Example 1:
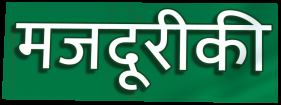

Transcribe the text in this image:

मजदूरीकी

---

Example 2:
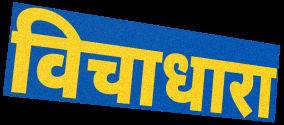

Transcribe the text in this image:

विचाधारा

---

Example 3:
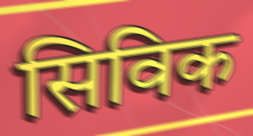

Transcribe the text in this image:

सिविक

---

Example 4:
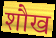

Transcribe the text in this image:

शौख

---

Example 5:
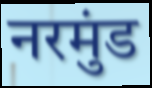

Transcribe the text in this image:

नरमुंड